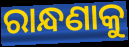
ରାନ୍ଧଣାକୁ